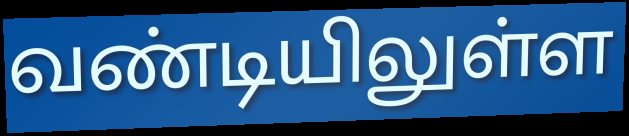
வண்டியிலுள்ள